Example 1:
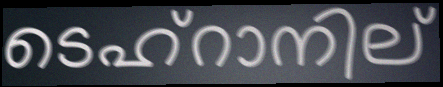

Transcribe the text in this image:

ടെഹ്റാനില്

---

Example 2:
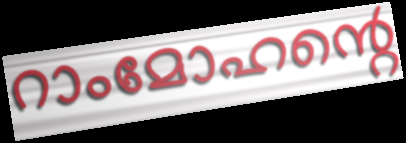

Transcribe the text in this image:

റാംമോഹന്റെ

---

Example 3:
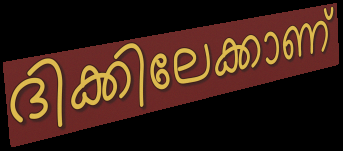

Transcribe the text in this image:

ദിക്കിലേക്കാണ്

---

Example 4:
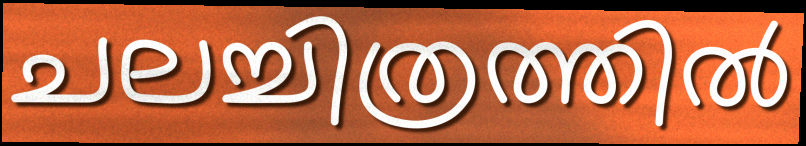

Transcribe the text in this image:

ചലച്ചിത്രത്തിൽ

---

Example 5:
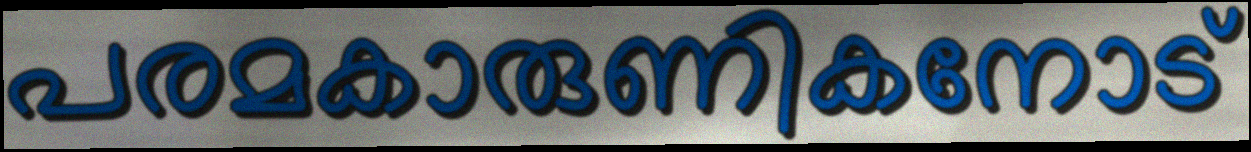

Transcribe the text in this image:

പരമകാരുണികനോട്